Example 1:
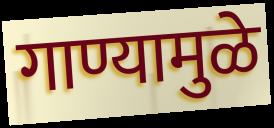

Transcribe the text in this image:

गाण्यामुळे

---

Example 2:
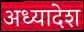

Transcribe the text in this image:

अध्यादेश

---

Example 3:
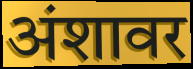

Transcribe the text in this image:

अंशावर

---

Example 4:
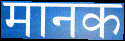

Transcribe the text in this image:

मानक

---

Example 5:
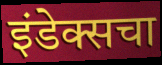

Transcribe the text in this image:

इंडेक्सचा